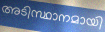
അടിസ്ഥാനമായി